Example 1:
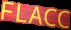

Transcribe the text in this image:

FLACC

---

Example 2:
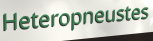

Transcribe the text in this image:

Heteropneustes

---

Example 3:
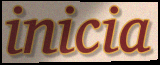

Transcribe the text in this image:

inicia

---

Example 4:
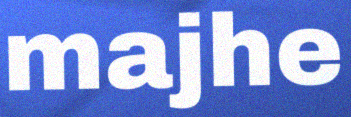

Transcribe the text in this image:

majhe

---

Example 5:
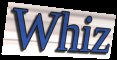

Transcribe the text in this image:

Whiz